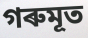
গৰুমূত